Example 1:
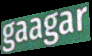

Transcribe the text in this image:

gaagar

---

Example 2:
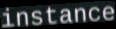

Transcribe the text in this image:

instance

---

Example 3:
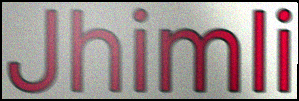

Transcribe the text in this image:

Jhimli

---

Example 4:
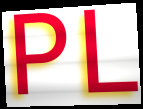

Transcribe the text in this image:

PL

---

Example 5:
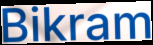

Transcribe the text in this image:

Bikram